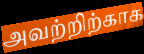
அவற்றிற்காக